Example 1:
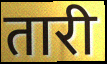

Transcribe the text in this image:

तारी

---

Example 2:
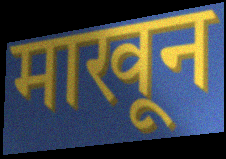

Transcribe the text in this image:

माखून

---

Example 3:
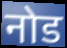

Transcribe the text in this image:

नोड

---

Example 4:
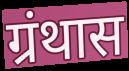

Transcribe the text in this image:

ग्रंथास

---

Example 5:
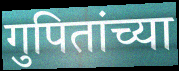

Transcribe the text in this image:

गुपितांच्या